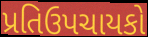
પ્રતિઉપચાયકો